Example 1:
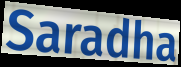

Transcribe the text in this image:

Saradha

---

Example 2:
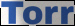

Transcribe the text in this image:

Torr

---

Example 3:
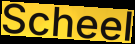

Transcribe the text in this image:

Scheel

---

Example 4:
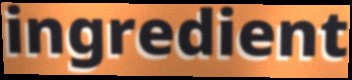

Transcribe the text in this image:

ingredient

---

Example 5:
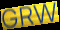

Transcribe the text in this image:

GRW